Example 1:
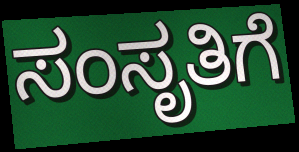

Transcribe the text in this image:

ಸಂಸೃತಿಗೆ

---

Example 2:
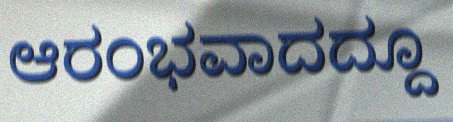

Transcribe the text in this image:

ಆರಂಭವಾದದ್ದೂ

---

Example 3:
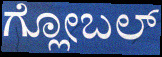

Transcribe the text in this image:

ಗ್ಲೋಬಲ್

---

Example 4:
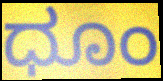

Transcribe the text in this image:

ಧೂಂ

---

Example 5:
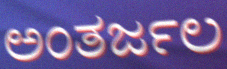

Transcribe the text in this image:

ಅಂತರ್ಜಲ